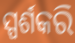
ସ୍ପର୍ଶକରି